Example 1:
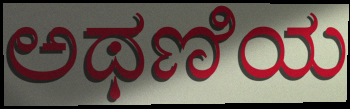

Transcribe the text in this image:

ಅಥಣಿಯ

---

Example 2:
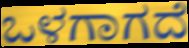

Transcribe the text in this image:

ಒಳಗಾಗದೆ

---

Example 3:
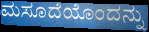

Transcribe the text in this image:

ಮಸೂದೆಯೊಂದನ್ನು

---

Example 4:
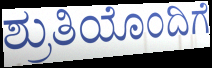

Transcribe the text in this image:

ಶ್ರುತಿಯೊಂದಿಗೆ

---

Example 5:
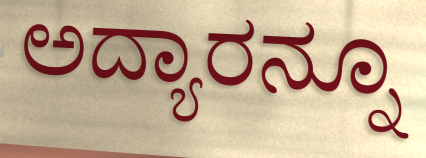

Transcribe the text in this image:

ಅದ್ಯಾರನ್ನೂ